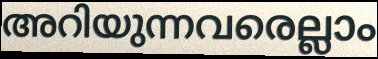
അറിയുന്നവരെല്ലാം